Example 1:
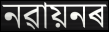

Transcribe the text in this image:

নৱায়নৰ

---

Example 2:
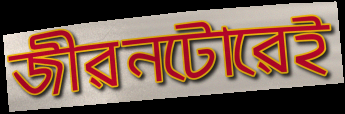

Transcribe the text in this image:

জীৱনটোৱেই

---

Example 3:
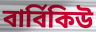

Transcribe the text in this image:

বাৰ্বিকিউ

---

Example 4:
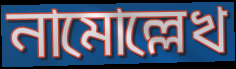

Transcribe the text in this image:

নামোল্লেখ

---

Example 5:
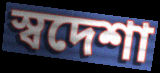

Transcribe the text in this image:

স্বদেশা